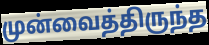
முன்வைத்திருந்த